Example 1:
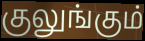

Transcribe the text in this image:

குலுங்கும்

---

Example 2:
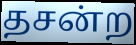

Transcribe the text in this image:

தசன்ற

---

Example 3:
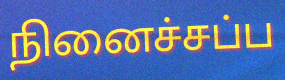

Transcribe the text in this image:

நினைச்சப்ப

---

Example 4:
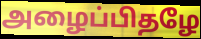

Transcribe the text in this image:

அழைப்பிதழே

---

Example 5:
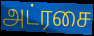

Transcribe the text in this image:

அட்ரசை